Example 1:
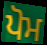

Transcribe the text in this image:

ਪੋਮ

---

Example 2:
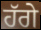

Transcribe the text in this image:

ਹੱਗੇ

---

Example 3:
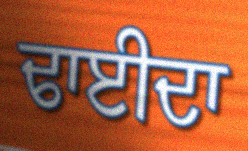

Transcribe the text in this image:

ਢਾਈਦਾ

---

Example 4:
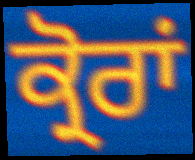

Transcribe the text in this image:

ਕ੍ਰੋਰਾਂ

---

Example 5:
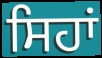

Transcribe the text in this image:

ਸਿਹਾਂ